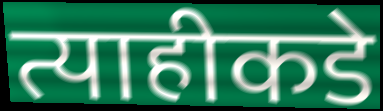
त्याहीकडे